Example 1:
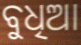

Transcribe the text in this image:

ବୁଧିଆ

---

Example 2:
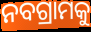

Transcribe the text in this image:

ନବଗ୍ରାମକୁ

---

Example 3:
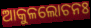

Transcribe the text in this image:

ଆକୁଳଲୋଚନଃ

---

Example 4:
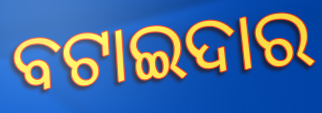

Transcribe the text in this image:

ବଟାଇଦାର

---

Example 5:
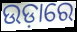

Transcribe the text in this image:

ଉଡ଼ାରେ